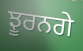
ਝੂਰਨਗੇ